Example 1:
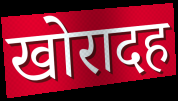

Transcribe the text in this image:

खोरादह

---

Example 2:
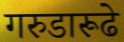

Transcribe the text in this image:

गरुडारूढे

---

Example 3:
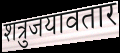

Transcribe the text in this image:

शत्रुजयावतार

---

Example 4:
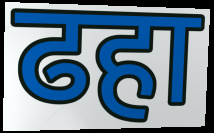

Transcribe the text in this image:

ढहा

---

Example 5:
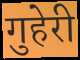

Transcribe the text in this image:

गुहेरी